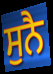
ਸੁਨੈ